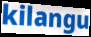
kilangu